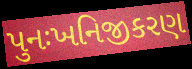
પુનઃખનિજીકરણ